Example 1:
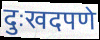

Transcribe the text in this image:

दुःखदपणे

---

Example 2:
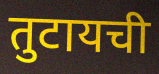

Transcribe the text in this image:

तुटायची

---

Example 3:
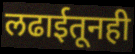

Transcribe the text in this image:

लढाईतूनही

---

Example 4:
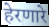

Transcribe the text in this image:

हेरणारे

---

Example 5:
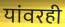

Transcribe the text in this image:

यांवरही